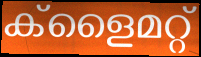
ക്ളൈമറ്റ്